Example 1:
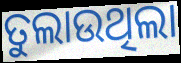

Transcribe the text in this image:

ତୁଲାଉଥିଲା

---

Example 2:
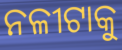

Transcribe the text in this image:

ନଳୀଟାକୁ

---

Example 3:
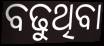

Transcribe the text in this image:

ବଢୁଥିବା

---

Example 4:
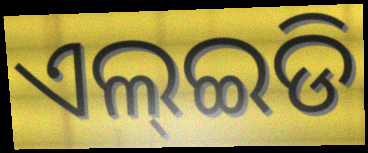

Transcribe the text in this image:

ଏଲ୍ଇଡି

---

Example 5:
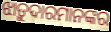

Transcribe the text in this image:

ଝାଡ଼ୁଦାରମାନଙ୍କର